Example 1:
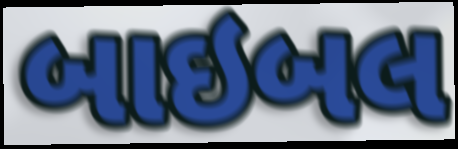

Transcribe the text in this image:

બાઇબલ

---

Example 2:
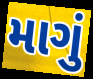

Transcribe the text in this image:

માગું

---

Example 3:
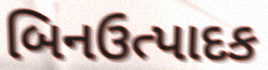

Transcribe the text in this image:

બિનઉત્પાદક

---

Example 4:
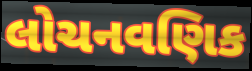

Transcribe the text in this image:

લોચનવણિક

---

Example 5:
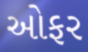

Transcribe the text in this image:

ઓફર